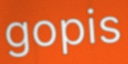
gopis